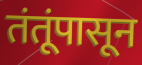
तंतूंपासून